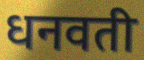
धनवती